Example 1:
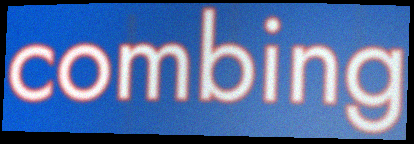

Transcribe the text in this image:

combing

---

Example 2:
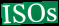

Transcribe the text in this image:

ISOs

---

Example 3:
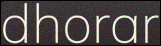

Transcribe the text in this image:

dhorar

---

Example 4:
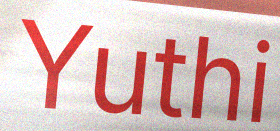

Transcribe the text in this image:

Yuthi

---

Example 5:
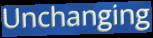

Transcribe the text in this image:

Unchanging